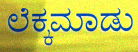
ಲೆಕ್ಕಮಾಡು